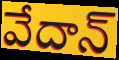
వేదాన్